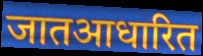
जातआधारित